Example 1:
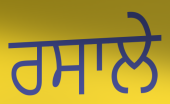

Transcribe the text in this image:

ਰਸਾਲੇ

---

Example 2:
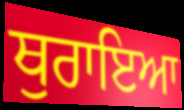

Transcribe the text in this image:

ਥੁਰਾਇਆ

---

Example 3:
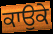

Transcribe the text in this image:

ਕਾਉਕੇ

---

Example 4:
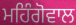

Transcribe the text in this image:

ਮਹਿੰਗੋਵਾਲ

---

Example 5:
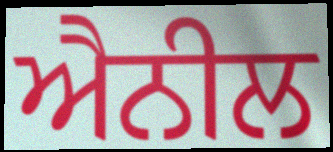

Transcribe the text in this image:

ਐਨੀਲ